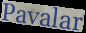
Pavalar